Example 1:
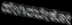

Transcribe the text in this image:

ಹೇಗಿರಬೇಕೋ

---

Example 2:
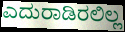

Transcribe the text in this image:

ಎದುರಾಡಿರಲಿಲ್ಲ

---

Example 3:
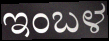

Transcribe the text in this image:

ಇಂಬಳ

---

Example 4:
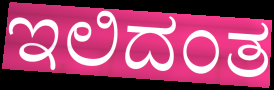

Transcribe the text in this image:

ಇಲಿದಂತ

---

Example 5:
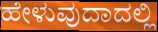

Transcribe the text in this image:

ಹೇಳುವುದಾದಲ್ಲಿ